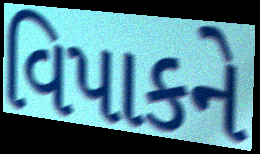
વિપાકને